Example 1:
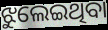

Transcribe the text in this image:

ଝୁଲେଇଥିବା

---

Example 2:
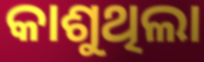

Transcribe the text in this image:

କାଶୁଥିଲା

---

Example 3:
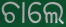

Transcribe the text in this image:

ଚାଲେ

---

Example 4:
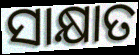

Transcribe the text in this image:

ସାକ୍ଷାତ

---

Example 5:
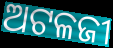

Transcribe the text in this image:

ଅଟଳଜୀ